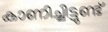
കാണിച്ചിട്ടുണ്ട്